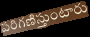
పరిగణిస్తుంటారు